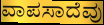
ವಾಪಸಾದೆವು